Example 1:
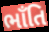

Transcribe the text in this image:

ભાઁતિ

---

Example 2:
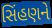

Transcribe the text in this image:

સિંહણને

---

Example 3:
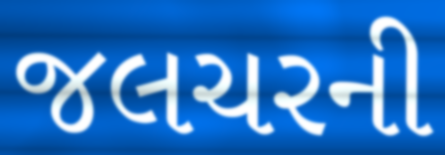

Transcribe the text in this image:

જલચરની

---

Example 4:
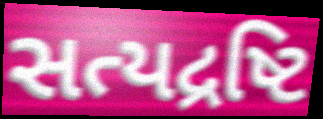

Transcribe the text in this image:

સત્યદ્રષ્ટિ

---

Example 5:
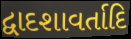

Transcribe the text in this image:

દ્વાદશાવર્તાદિ